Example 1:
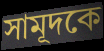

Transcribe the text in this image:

সামূদকে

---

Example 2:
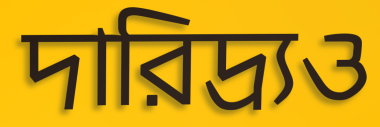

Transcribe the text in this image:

দারিদ্র্যও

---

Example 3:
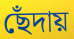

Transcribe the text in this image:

ছেঁদায়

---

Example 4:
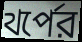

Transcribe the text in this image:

থর্পের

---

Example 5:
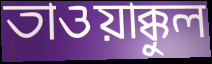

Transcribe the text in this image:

তাওয়াক্কুল